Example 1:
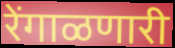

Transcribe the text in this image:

रेंगाळणारी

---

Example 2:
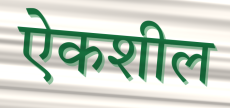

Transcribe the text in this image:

ऐकशील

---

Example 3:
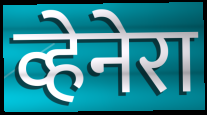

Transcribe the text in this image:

व्हेनेरा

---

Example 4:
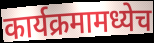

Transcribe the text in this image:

कार्यक्रमामध्येच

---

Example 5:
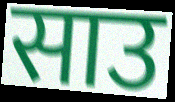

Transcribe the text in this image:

साउ